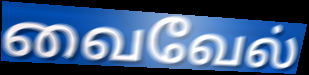
வைவேல்